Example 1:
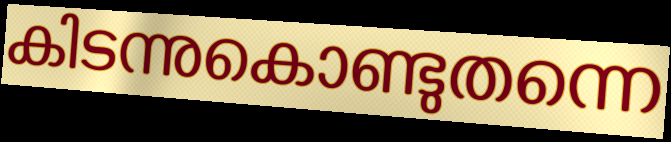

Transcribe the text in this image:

കിടന്നുകൊണ്ടുതന്നെ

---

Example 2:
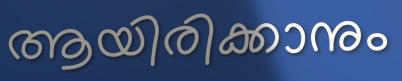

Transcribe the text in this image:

ആയിരിക്കാനും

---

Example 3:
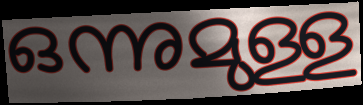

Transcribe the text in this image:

ഒന്നുമുള്ള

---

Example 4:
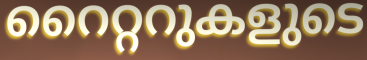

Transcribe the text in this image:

റൈറ്ററുകളുടെ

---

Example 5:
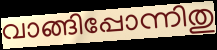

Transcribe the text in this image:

വാങ്ങിപ്പോന്നിതു